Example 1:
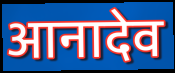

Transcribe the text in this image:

आनादेव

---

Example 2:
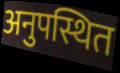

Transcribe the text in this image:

अनुपस्थित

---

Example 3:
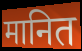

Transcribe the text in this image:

मानित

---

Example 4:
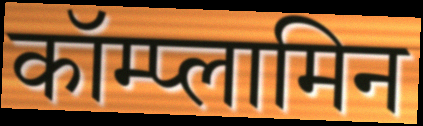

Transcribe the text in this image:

कॉम्प्लामिन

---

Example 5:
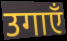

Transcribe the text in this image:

उगाएँ